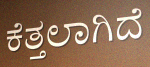
ಕೆತ್ತಲಾಗಿದೆ